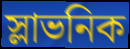
স্লাভনিক